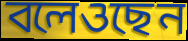
বলেওছেন